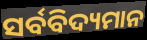
ସର୍ବବିଦ୍ୟମାନ